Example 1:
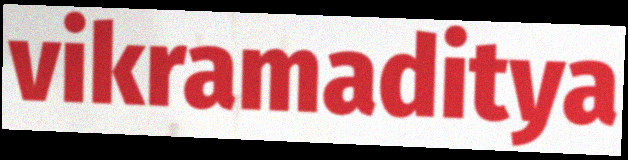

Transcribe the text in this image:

vikramaditya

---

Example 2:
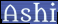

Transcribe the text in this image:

Ashi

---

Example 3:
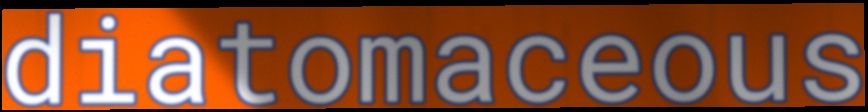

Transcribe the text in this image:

diatomaceous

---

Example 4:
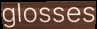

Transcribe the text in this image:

glosses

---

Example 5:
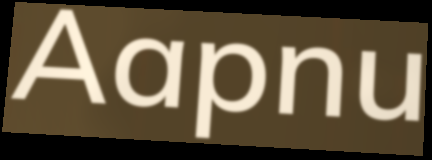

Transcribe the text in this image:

Aapnu